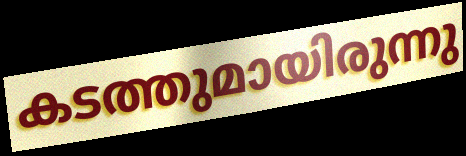
കടത്തുമായിരുന്നു